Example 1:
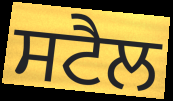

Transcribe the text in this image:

ਸਟੈਲ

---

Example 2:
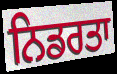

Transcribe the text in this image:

ਨਿਡਰਤਾ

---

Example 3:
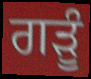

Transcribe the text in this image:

ਗੜੂੰ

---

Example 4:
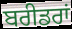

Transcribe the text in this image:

ਬਰੀਡਰਾਂ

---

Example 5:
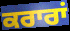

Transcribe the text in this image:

ਕਰਾਰਾਂ